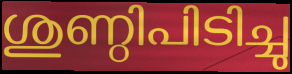
ശുണ്ഠിപിടിച്ചു